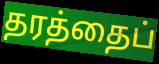
தரத்தைப்